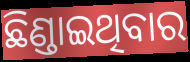
ଛିଣ୍ଡାଇଥିବାର